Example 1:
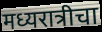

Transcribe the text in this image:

मध्यरात्रीचा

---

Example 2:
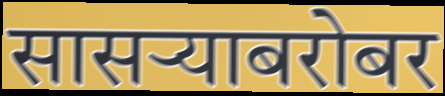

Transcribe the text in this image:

सासऱ्याबरोबर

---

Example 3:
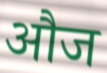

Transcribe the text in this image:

औज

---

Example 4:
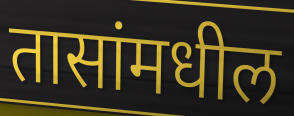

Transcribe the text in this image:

तासांमधील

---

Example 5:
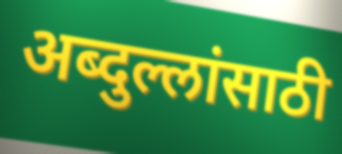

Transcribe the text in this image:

अब्दुल्लांसाठी